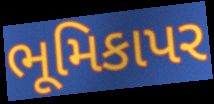
ભૂમિકાપર